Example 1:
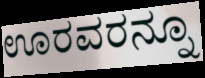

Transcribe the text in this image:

ಊರವರನ್ನೂ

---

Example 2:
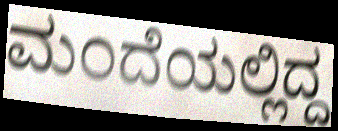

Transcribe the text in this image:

ಮಂದೆಯಲ್ಲಿದ್ದ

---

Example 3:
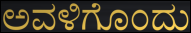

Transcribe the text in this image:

ಅವಳಿಗೊಂದು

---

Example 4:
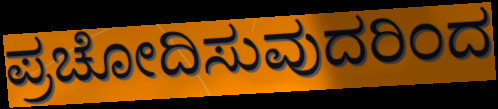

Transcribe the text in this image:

ಪ್ರಚೋದಿಸುವುದರಿಂದ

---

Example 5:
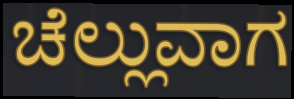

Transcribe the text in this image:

ಚೆಲ್ಲುವಾಗ